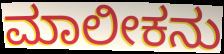
ಮಾಲೀಕನು